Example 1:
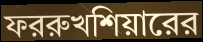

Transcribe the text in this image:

ফররুখশিয়ারের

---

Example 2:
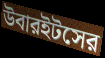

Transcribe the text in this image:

উবারইটসের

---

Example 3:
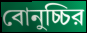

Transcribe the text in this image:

বোনুচ্চির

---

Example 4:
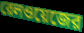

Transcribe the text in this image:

রেলওয়েজের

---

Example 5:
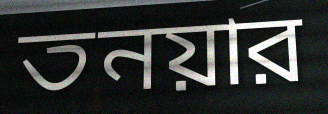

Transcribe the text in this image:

তনয়ার